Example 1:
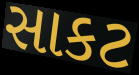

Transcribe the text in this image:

સાકટ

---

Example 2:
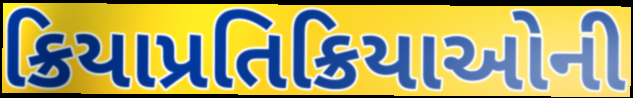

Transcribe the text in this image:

ક્રિયાપ્રતિક્રિયાઓની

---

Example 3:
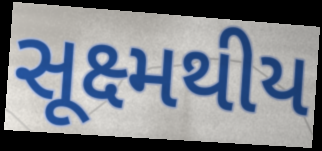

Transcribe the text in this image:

સૂક્ષ્મથીય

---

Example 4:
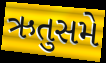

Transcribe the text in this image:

ઋતુસમે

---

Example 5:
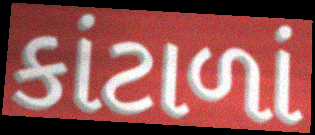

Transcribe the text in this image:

કાંટાળાં